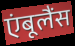
एंबूलैंस